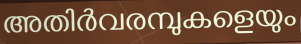
അതിർവരമ്പുകളെയും